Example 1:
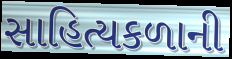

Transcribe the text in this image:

સાહિત્યકળાની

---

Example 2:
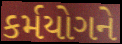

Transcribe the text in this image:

કર્મયોગને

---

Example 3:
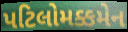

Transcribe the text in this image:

પટિલોમક્કમેન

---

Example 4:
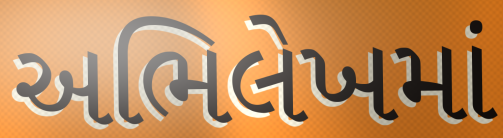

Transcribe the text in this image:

અભિલેખમાં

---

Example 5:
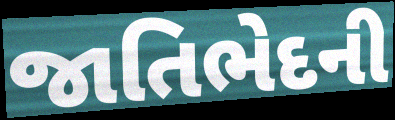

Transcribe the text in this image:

જાતિભેદની